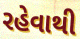
રહેવાથી